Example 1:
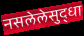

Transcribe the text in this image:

नसलेलेसुद्धा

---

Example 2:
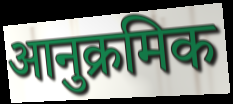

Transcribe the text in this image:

आनुक्रमिक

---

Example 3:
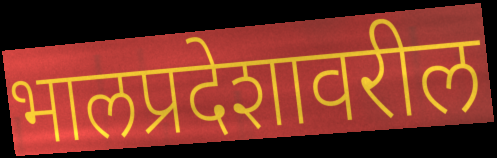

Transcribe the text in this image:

भालप्रदेशावरील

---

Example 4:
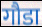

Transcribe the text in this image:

गौडा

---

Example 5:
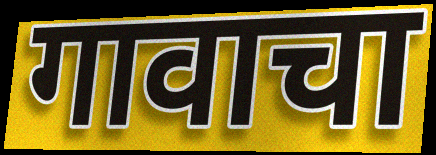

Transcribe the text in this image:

गावाचा